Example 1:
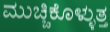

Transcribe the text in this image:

ಮುಚ್ಚಿಕೊಳ್ಳುತ್ತ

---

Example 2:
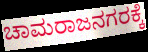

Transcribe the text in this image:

ಚಾಮರಾಜನಗರಕ್ಕೆ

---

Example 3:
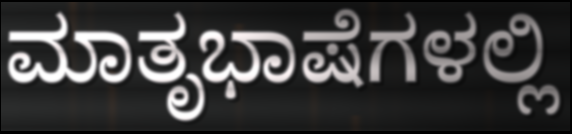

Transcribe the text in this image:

ಮಾತೃಭಾಷೆಗಳಲ್ಲಿ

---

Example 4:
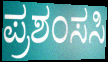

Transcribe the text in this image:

ಪ್ರಶಂಸಸಿ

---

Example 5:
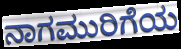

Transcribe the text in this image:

ನಾಗಮುರಿಗೆಯ